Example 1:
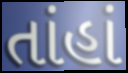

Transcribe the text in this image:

તાંહાં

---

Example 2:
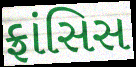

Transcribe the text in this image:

ફ્રાંસિસ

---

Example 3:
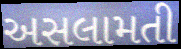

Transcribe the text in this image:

અસલામતી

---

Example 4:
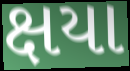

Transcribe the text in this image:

ક્ષયા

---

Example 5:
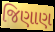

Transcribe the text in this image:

જિણાણ